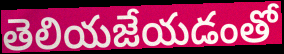
తెలియజేయడంతో